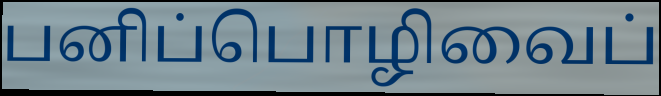
பனிப்பொழிவைப்